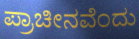
ಪ್ರಾಚೀನವೆಂದು